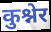
कुश्नेर